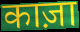
काज़ा